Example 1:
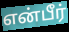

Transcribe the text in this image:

என்பீர்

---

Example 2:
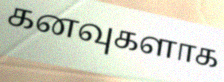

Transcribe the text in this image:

கனவுகளாக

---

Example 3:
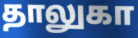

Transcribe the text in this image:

தாலுகா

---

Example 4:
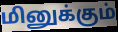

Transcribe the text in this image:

மினுக்கும்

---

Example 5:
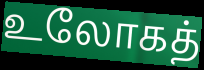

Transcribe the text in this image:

உலோகத்